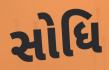
સોધિ